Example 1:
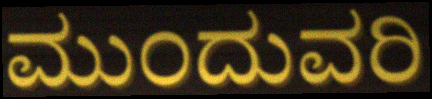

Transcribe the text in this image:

ಮುಂದುವರಿ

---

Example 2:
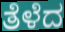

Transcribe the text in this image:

ತೆಳೆದ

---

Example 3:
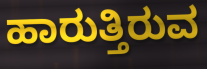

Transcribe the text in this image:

ಹಾರುತ್ತಿರುವ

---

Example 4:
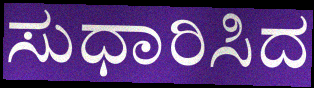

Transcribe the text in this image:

ಸುಧಾರಿಸಿದ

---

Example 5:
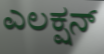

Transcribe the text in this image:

ಎಲಕ್ಷನ್